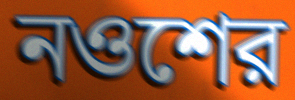
নওশের